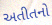
અતીતનો